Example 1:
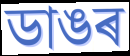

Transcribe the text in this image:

ডাঙৰ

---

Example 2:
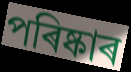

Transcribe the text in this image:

পৰিষ্কাৰ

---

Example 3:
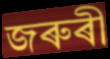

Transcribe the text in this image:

জৰুৰী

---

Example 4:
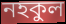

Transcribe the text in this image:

নহকুল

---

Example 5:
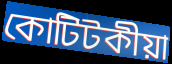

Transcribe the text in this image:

কোটিটকীয়া